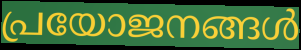
പ്രയോജനങ്ങൾ